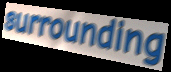
surrounding